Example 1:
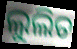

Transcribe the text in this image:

ଲୁଲିତ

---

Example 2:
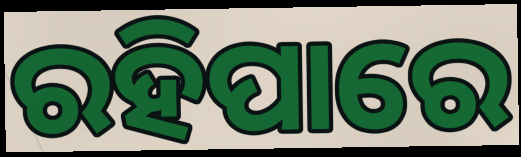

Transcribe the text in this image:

ରହିପାରେ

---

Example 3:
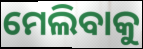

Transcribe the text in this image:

ମେଲିବାକୁ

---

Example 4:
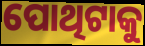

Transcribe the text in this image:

ପୋଥିଟାକୁ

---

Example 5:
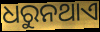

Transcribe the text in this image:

ଧରୁନଥାଏ